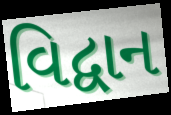
વિદ્વાન